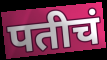
पतीचं